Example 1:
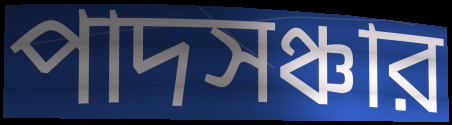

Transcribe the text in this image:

পাদসঞ্চার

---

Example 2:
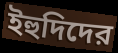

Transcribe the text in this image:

ইহুদিদের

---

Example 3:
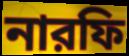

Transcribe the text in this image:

নারফি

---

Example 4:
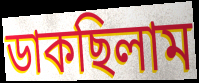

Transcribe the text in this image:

ডাকছিলাম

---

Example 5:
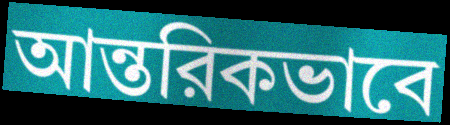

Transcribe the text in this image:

আন্তরিকভাবে